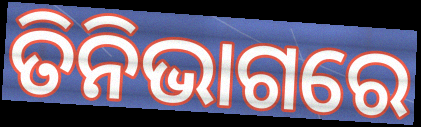
ତିନିଭାଗରେ